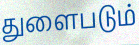
துளைபடும்